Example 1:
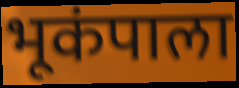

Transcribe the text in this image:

भूकंपाला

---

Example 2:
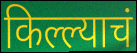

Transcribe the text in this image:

किल्ल्याचं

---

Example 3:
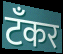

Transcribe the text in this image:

टँकर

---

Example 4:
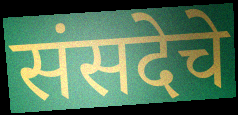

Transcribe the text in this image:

संसदेचे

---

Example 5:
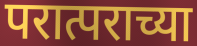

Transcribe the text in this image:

परात्पराच्या